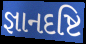
જ્ઞાનદષ્ટિ